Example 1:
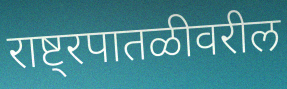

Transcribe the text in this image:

राष्ट्रपातळीवरील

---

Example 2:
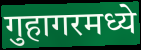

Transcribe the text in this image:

गुहागरमध्ये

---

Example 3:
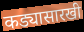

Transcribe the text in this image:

कड्यासारखी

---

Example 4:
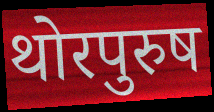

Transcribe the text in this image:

थोरपुरुष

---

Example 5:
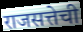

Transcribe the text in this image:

राजसत्तेची